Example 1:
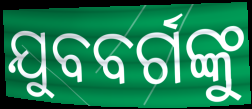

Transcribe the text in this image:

ଯୁବବର୍ଗଙ୍କୁ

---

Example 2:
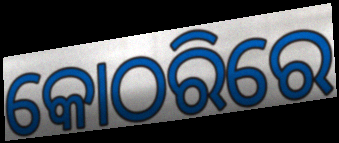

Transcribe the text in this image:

କୋଠରିରେ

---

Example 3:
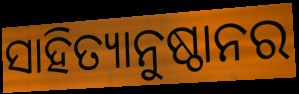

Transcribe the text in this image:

ସାହିତ୍ୟାନୁଷ୍ଠାନର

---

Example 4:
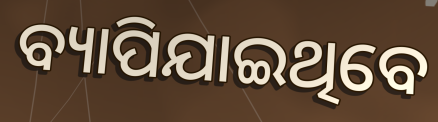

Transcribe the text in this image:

ବ୍ୟାପିଯାଇଥିବେ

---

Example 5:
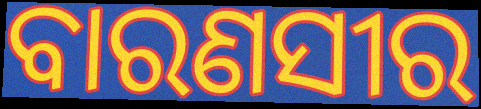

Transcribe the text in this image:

ବାରଣସୀର